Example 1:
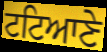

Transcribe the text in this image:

ਟਟਿਆਣੇ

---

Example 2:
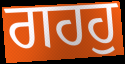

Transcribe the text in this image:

ਗਹਹੁ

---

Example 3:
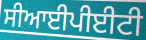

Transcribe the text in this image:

ਸੀਆਈਪੀਈਟੀ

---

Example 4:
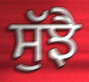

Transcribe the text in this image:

ਸੁੱਝੈ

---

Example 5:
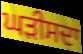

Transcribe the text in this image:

ਘੜੀਸਦਾ